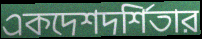
একদেশদর্শিতার